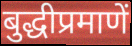
बुद्धीप्रमाणें